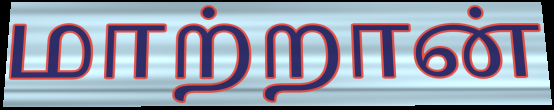
மாற்றான்